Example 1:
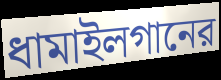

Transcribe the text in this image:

ধামাইলগানের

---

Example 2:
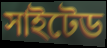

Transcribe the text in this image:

সাইটেড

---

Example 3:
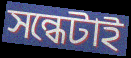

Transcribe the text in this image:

সন্ধেটাই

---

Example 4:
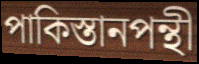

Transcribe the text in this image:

পাকিস্তানপন্থী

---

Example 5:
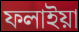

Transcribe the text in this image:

ফলাইয়া